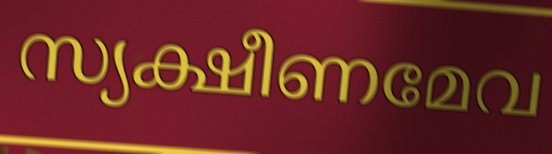
സ്യക്ഷീണമേവ